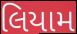
લિયામ